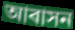
আবাসন